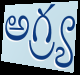
అగ్ర్య